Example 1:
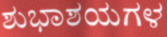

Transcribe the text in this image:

ಶುಭಾಶಯಗಳ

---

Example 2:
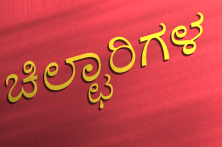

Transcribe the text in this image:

ಚಿಲ್ಟಾರಿಗಳ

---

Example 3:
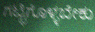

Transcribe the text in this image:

ಗಟ್ಟಿಗೊಳ್ಳಬೇಕು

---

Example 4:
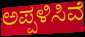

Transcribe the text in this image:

ಅಪ್ಪಳಿಸಿವೆ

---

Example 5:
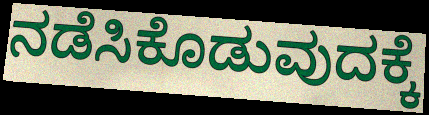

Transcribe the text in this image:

ನಡೆಸಿಕೊಡುವುದಕ್ಕೆ